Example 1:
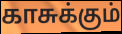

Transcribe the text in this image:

காசுக்கும்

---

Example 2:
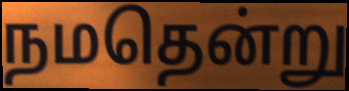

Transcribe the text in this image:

நமதென்று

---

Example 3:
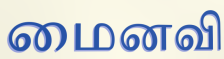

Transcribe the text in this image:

மைனவி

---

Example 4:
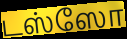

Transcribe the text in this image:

டஸ்ஸோ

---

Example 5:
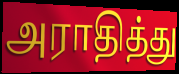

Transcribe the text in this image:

அராதித்து